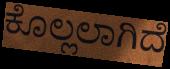
ಕೊಲ್ಲಲಾಗಿದೆ